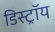
डिस्ट्रॉय